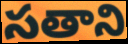
సతాని